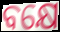
ବକ୍ଷେ